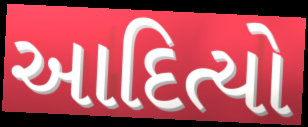
આદિત્યો